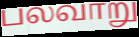
பலவாறு